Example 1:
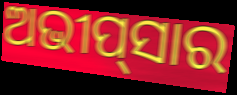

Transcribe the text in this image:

ଅଭୀପ୍‌ସାର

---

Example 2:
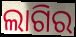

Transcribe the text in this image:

ଲାଗିର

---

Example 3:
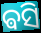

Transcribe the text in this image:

ଵସି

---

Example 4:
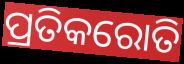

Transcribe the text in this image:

ପ୍ରତିକରୋତି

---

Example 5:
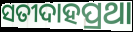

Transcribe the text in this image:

ସତୀଦାହପ୍ରଥା